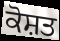
ਕੋਸ਼ਤ